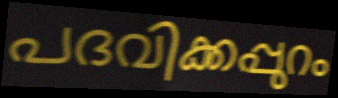
പദവിക്കപ്പുറം